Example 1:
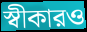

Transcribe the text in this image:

স্বীকারও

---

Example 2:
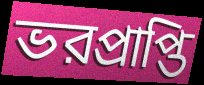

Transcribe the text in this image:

ভরপ্রাপ্তি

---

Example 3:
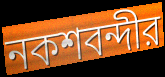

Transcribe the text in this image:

নকশবন্দীর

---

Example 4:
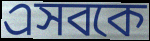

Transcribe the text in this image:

এসবকে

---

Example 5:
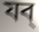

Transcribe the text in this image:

যব্